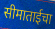
सीमाताईचा